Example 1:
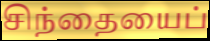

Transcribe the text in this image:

சிந்தையைப்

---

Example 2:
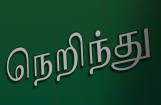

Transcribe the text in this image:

நெறிந்து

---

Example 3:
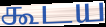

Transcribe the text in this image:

கூடய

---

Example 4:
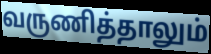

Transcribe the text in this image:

வருணித்தாலும்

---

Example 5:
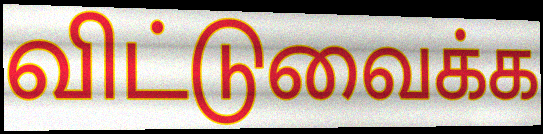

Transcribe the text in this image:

விட்டுவைக்க